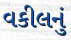
વકીલનું